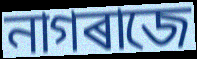
নাগৰাজে